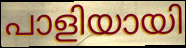
പാളിയായി